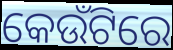
କେଉଁଟିରେ